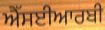
ਐੱਸਈਆਰਬੀ